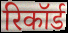
रिकॉर्ड